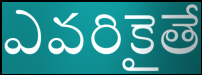
ఎవరికైతే